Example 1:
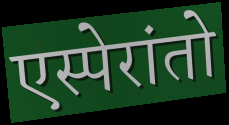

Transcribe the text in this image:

एस्पेरांतो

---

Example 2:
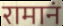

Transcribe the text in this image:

रामानं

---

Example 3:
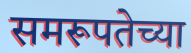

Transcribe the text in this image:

समरूपतेच्या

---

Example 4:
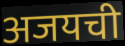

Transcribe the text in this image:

अजयची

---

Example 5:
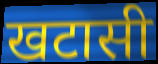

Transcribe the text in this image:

खटासी